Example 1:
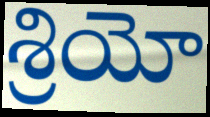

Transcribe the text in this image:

శ్రియో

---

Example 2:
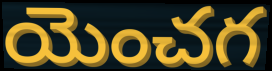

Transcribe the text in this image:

యెంచగ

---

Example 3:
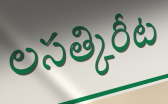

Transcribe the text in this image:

లసత్కిరీట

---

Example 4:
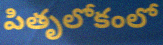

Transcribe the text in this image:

పితృలోకంలో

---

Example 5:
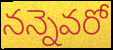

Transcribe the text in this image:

నన్నెవరో